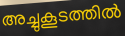
അച്ചുകൂടത്തിൽ